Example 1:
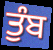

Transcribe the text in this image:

ਤੁੰਬ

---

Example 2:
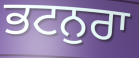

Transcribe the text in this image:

ਭਟਨੁਰਾ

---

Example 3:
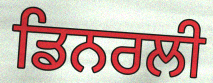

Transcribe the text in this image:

ਡਿਨਰਲੀ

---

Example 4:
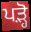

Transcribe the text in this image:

ਪ਼ੜ੍ਹੋ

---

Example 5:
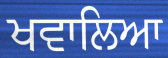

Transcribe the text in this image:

ਖਵਾਲਿਆ